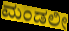
ಮಂಡಲೀ